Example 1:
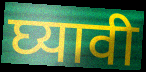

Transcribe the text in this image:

घ्यावी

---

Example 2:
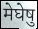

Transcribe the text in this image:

मेघेषु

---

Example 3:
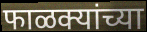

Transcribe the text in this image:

फाळक्यांच्या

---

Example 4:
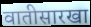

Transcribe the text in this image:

वातीसारखा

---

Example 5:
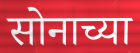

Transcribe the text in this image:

सोनाच्या